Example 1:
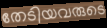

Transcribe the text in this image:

തേടിയവരുടെ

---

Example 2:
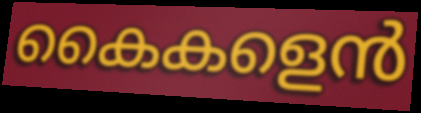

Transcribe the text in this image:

കൈകളെൻ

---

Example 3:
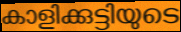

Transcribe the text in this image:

കാളിക്കുട്ടിയുടെ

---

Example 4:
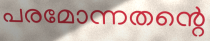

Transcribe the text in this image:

പരമോന്നതന്റെ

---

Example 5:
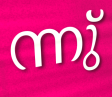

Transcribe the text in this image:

ന്നു്